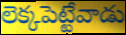
లెక్కపెట్టేవాడు